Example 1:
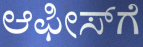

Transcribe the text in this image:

ಆಫೀಸ್‍ಗೆ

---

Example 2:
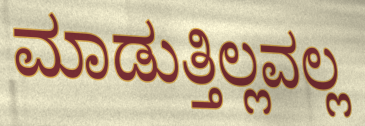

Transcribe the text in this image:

ಮಾಡುತ್ತಿಲ್ಲವಲ್ಲ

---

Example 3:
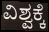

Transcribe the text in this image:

ವಿಶ್ವಕ್ಕೆ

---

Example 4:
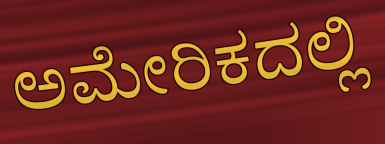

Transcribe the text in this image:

ಅಮೇರಿಕದಲ್ಲಿ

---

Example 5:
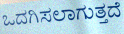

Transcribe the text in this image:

ಒದಗಿಸಲಾಗುತ್ತದೆ